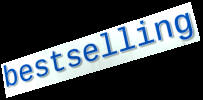
bestselling